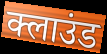
क्लाउंड